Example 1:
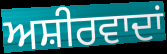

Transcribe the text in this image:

ਅਸ਼ੀਰਵਾਦਾਂ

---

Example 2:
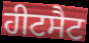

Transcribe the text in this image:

ਹੀਟਸੈਟ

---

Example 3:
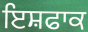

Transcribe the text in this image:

ਇਸ਼ਫਾਕ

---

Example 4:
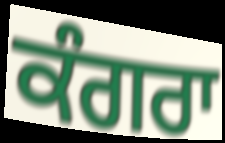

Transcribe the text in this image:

ਕੰਗਰਾ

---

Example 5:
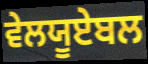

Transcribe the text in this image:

ਵੇਲਯੂਏਬਲ